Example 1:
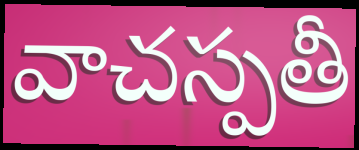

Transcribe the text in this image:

వాచస్పతీ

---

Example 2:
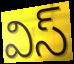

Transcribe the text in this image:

విస్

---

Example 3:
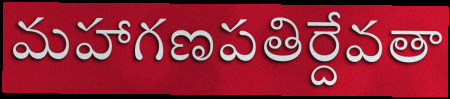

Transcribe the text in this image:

మహాగణపతిర్దేవతా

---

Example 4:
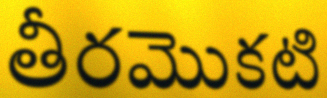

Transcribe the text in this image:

తీరమొకటి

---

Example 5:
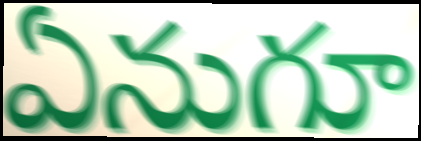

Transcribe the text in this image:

ఏనుగూ